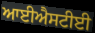
ਆਈਐਸਟੀਈ